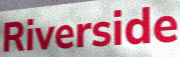
Riverside